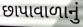
છાપાવાળાનું